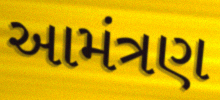
આમંત્રણ